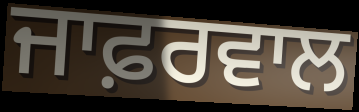
ਜਾਫ਼ਰਵਾਲ